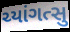
ચ્યાંગત્સુ